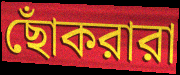
ছোঁকরারা